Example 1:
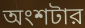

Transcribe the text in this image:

অংশটার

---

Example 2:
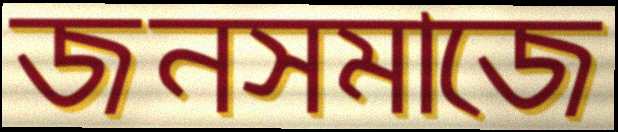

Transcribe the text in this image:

জনসমাজে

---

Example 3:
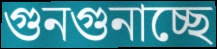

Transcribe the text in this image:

গুনগুনাচ্ছে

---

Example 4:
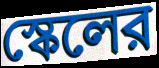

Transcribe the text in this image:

স্কেলের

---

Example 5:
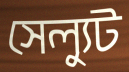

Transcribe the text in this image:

সেল্যুট